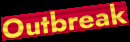
Outbreak